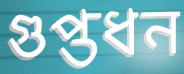
গুপ্তধন